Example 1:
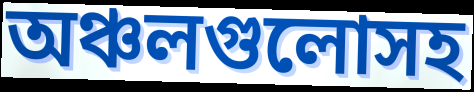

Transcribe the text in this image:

অঞ্চলগুলোসহ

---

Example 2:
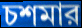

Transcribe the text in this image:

চশমার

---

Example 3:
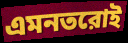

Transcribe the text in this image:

এমনতরোই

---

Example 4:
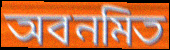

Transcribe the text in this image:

অবনমিত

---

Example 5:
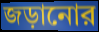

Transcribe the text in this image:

জড়ানোর